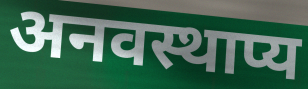
अनवस्थाप्य